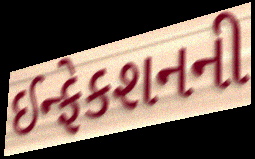
ઈન્ફેકશનની